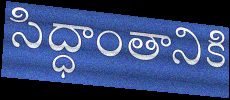
సిద్ధాంతానికి